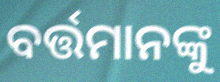
ବର୍ତ୍ତମାନଙ୍କୁ